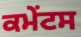
ਕਮੇੰਟਸ